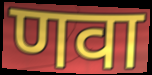
णवा